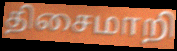
திசைமாறி